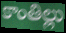
కాంతిల్లు